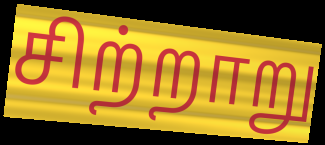
சிற்றாறு